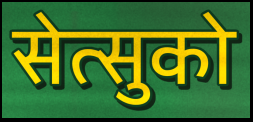
सेत्सुको